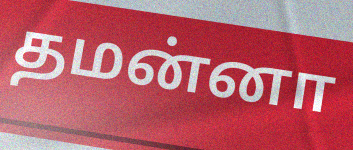
தமன்னா